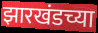
झारखंडच्या